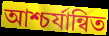
আশ্চর্যান্বিত